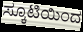
ಸ್ಕೂಟಿಯಿಂದ